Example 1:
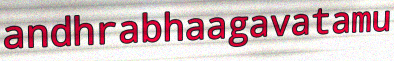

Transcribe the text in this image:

andhrabhaagavatamu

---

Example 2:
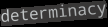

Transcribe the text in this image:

determinacy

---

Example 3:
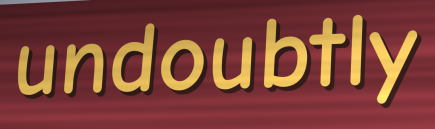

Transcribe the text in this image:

undoubtly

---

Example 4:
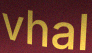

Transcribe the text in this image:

vhal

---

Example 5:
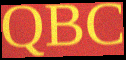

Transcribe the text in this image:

QBC